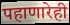
पहाणारेही